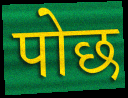
पोछ